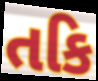
તકિ